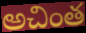
అచింత